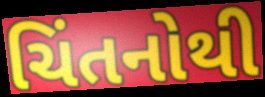
ચિંતનોથી